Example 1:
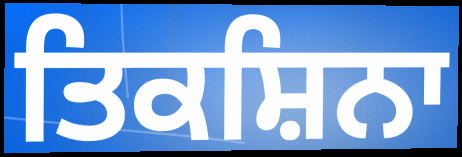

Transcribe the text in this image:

ਤਿਕਸ਼ਿਨਾ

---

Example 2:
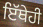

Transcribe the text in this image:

ਇੱਥੇਹੀ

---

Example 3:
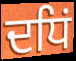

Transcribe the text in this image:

ਦਧਿਂ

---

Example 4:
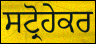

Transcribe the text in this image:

ਸਟ੍ਰੋਹੇਕਰ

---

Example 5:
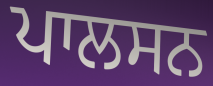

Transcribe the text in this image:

ਪਾਲਸਨ